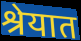
श्रेयात